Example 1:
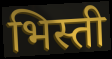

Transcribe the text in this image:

भिस्ती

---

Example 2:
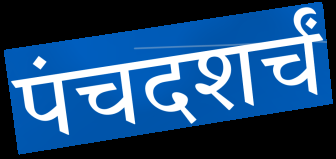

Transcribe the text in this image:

पंचदशर्चं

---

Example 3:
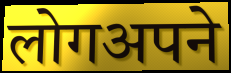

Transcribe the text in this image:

लोगअपने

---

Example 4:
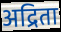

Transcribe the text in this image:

अद्रिता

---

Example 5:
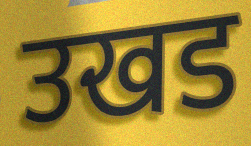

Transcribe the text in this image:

उखड